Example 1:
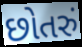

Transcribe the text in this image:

છોતરું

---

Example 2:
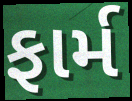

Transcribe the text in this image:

ફાર્મ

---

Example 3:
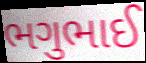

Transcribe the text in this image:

ભગુભાઈ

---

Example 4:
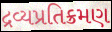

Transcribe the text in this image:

દ્રવ્યપ્રતિક્રમણ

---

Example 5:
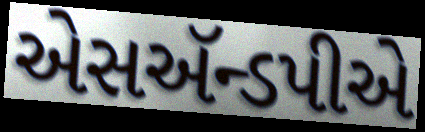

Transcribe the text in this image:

એસઍન્ડપીએ